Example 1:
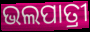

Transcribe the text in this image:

ଭଲପାତ୍ରୀ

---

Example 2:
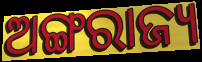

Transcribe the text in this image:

ଅଙ୍ଗରାଜ୍ୟ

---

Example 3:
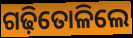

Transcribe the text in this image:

ଗଢ଼ିତୋଳିଲେ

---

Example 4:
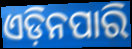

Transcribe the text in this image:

ଏଡ଼ିନପାରି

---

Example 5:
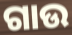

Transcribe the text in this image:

ଗାଉ